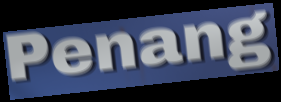
Penang